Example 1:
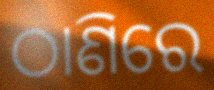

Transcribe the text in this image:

ଠାଣିରେ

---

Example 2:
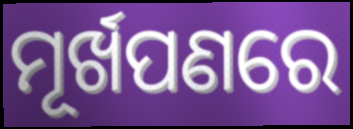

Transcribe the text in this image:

ମୂର୍ଖପଣରେ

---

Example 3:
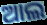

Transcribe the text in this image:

ଆଲ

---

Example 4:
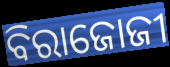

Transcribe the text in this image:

ବିରାଜୋଜୀ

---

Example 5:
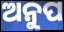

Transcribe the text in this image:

ଅନୁପ